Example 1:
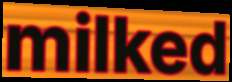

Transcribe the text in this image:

milked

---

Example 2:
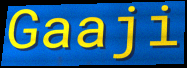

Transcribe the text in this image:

Gaaji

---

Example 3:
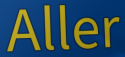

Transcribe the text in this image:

Aller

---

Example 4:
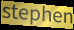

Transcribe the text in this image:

stephen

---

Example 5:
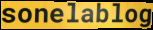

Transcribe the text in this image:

sonelablog